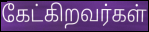
கேட்கிறவர்கள்